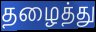
தழைத்து